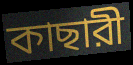
কাছারী